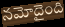
నమోదైంది